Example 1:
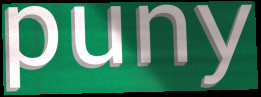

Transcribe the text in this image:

puny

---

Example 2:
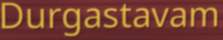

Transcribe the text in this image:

Durgastavam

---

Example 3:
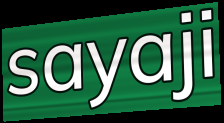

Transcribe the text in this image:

sayaji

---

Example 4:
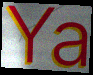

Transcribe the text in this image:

Ya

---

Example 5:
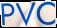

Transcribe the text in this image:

PVC